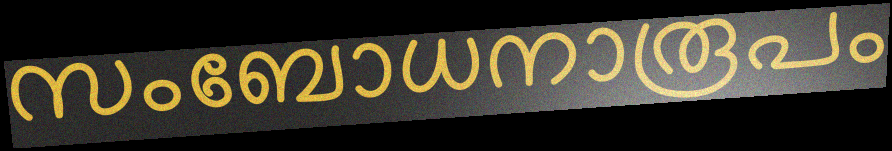
സംബോധനാരൂപം